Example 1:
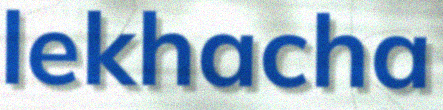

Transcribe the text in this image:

lekhacha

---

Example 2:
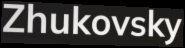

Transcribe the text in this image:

Zhukovsky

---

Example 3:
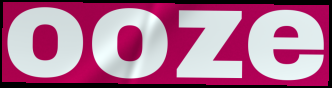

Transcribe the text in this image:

ooze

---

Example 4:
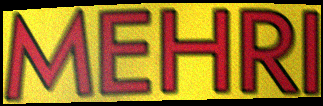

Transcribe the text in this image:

MEHRI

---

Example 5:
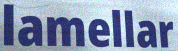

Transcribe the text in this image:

lamellar